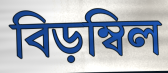
বিড়ম্বিল